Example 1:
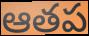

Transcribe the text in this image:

ఆతప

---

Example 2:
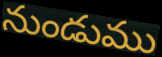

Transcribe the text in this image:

నుండుము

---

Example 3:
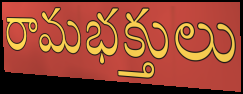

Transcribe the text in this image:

రామభక్తులు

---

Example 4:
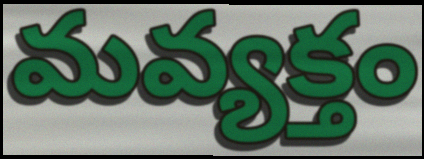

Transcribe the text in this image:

మవ్యక్తం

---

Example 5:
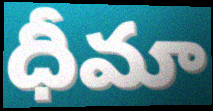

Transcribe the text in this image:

ధీమా